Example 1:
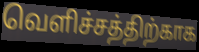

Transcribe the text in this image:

வெளிச்சத்திற்காக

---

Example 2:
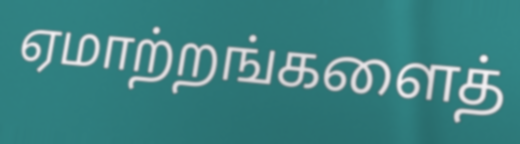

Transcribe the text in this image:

ஏமாற்றங்களைத்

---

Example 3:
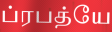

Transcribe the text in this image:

ப்ரபத்யே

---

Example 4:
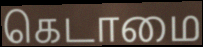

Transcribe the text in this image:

கெடாமை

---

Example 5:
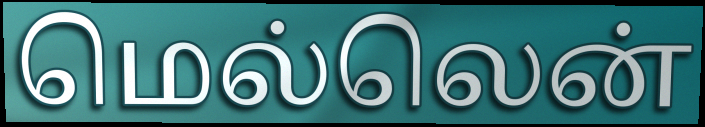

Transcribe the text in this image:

மெல்லென்